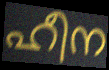
ഹീന